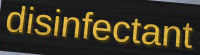
disinfectant